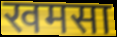
खमसा